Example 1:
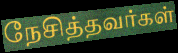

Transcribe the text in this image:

நேசித்தவர்கள்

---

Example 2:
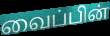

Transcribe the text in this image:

வைப்பின்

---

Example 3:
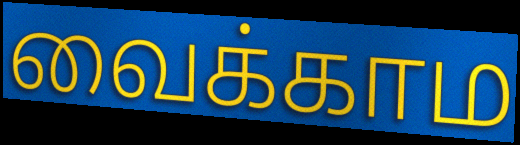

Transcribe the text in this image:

வைக்காம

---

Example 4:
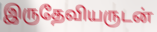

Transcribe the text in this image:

இருதேவியருடன்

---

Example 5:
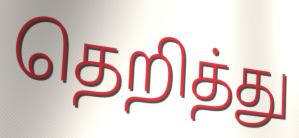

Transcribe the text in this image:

தெறித்து